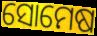
ସୋମେଷ